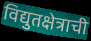
विद्युतक्षेत्राची